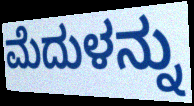
ಮೆದುಳನ್ನು